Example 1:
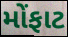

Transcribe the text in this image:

મોંફાટ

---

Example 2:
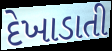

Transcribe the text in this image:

દેખાડાતી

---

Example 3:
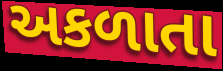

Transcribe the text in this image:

અકળાતા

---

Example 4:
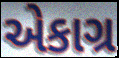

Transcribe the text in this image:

એકાગ્ર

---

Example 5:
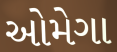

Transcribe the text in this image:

ઓમેગા